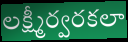
లక్ష్మీర్వరకలా